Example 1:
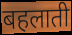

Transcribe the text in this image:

बहलाती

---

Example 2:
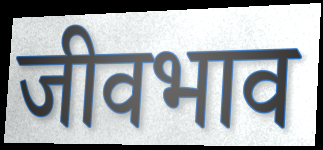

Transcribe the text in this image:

जीवभाव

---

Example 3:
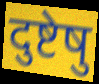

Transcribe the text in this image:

दुष्टेषु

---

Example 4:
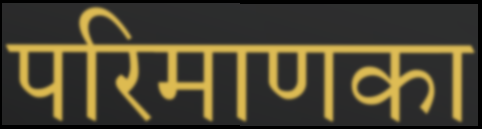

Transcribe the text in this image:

परिमाणका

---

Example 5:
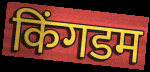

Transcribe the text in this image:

किंगडम